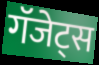
गॅजेट्स